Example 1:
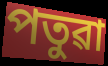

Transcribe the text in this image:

পতুৱা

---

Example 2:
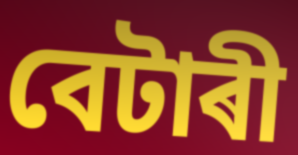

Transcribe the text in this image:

বেটাৰী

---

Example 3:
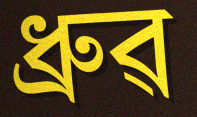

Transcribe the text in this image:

ধ্ৰুৱ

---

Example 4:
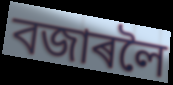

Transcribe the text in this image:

বজাৰলৈ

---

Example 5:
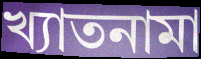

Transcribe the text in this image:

খ্যাতনামা